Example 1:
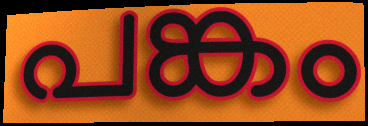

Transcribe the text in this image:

പങ്കം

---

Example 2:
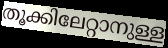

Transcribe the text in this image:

തൂക്കിലേറ്റാനുള്ള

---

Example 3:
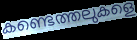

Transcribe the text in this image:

കണ്ടെത്തലുകളെ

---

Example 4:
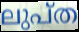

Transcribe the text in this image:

ലുപ്ത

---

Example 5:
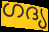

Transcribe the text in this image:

ഗദ്യ